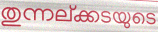
തുന്നല്ക്കടയുടെ